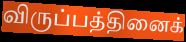
விருப்பத்தினைக்